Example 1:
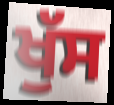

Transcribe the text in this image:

ਖੁੱਸ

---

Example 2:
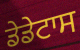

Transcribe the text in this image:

ਡੇਡੇਟਾਸ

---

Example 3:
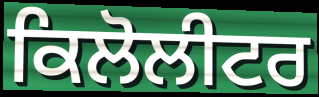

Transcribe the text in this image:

ਕਿਲੋਲੀਟਰ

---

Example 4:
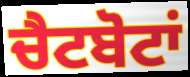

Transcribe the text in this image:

ਚੈਟਬੋਟਾਂ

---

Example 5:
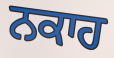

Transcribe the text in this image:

ਨਕਾਹ